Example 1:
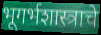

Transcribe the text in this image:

भूगर्भशास्त्राचे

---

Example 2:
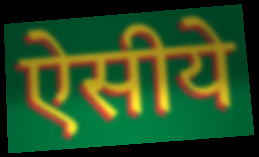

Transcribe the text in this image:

ऐसीये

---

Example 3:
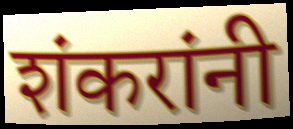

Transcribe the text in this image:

शंकरांनी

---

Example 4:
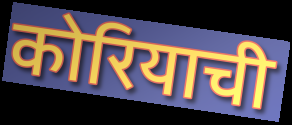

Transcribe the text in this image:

कोरियाची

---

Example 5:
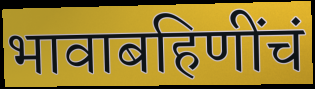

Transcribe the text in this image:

भावाबहिणींचं